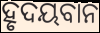
ହୃଦୟବାନ